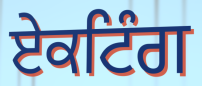
ਏਕਟਿੰਗ